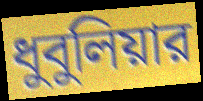
ধুবুলিয়ার